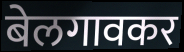
बेलगावकर